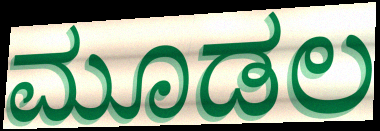
ಮೂಡಲ